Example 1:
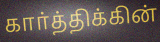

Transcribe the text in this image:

கார்த்திக்கின்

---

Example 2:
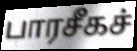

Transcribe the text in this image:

பாரசீகச்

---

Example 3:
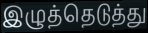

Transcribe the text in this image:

இழுத்தெடுத்து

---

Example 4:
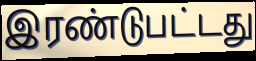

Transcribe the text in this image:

இரண்டுபட்டது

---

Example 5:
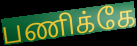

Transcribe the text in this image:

பணிக்கே